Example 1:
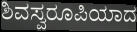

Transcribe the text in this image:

ಶಿವಸ್ವರೂಪಿಯಾದ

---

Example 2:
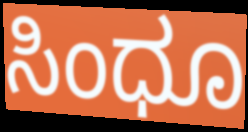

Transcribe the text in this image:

ಸಿಂಧೂ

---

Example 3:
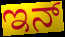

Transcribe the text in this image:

ಇನ್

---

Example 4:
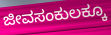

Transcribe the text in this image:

ಜೀವಸಂಕುಲಕ್ಕೂ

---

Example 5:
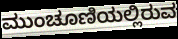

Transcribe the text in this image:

ಮುಂಚೂಣಿಯಲ್ಲಿರುವ